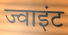
ज्वाइंट